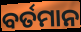
ବର୍ତମାନ